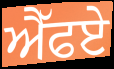
ਐੱਫਏ